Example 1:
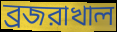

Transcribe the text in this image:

ব্রজরাখাল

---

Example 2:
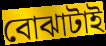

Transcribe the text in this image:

বোঝাটাই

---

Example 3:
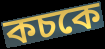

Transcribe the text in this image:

কচকে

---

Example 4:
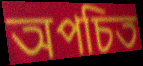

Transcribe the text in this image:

অপচিত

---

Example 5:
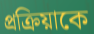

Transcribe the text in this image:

প্রক্রিয়াকে